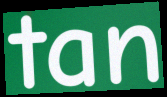
tan